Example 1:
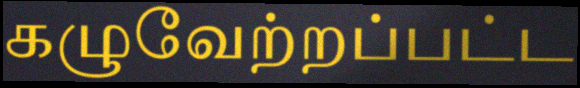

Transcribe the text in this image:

கழுவேற்றப்பட்ட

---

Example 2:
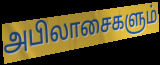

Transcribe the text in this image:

அபிலாசைகளும்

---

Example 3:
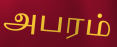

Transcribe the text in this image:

அபரம்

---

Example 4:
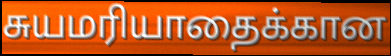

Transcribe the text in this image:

சுயமரியாதைக்கான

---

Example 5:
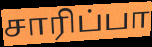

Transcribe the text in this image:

சாரிப்பா